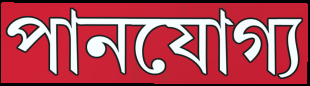
পানযোগ্য